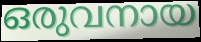
ഒരുവനായ